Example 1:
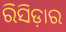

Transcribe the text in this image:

ରିସିଡ଼ାର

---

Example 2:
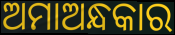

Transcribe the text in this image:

ଅମାଅନ୍ଧକାର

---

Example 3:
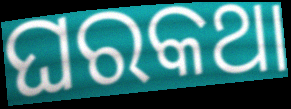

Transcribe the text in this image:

ଘରକଥା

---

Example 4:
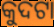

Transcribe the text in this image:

କୁଦଟା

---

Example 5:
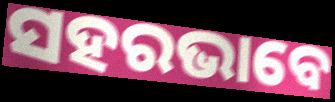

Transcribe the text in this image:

ସହରଭାବେ